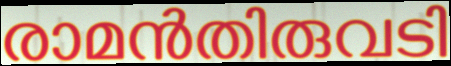
രാമൻതിരുവടി